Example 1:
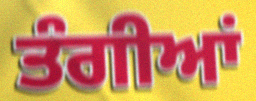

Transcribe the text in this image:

ਤੰਗੀਆਂ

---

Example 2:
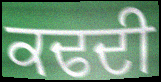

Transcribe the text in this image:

ਕਢਦੀ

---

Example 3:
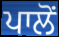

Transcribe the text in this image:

ਪਾਲੋਂ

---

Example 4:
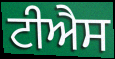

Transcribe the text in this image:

ਟੀਐਸ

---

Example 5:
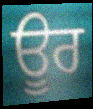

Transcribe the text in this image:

ਊਰ